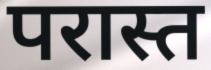
परास्त